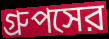
গ্রুপসের